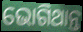
ଭୋଗିଥାନ୍ତ